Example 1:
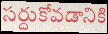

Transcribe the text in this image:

సర్దుకోవడానికి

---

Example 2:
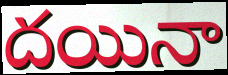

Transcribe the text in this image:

దయినా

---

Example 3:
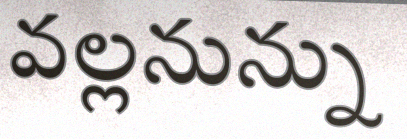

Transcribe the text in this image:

వల్లనున్ను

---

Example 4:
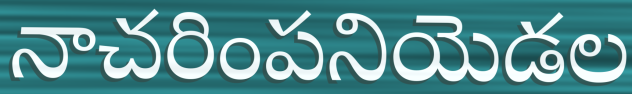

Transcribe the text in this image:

నాచరింపనియెడల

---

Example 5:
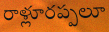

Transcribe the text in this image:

రాళ్లూరప్పలూ